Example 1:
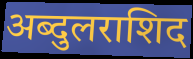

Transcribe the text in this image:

अब्दुलराशिद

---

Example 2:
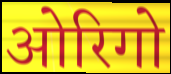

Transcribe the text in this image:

ओरिगो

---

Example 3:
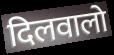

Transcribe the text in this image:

दिलवालो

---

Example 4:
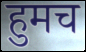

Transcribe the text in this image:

हुमच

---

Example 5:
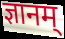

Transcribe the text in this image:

ज्ञानम्